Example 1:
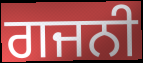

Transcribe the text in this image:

ਗਜਨੀ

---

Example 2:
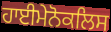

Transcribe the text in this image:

ਹਾਈਮੇਨੋਕਲਿਸ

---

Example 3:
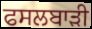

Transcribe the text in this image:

ਫਸਲਬਾੜੀ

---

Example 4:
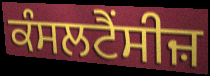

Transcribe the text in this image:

ਕੰਸਲਟੈਂਸੀਜ਼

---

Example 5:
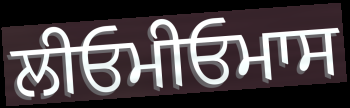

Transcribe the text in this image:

ਲੀਓਮੀਓਮਾਸ